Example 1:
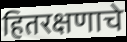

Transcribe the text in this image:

हितरक्षणाचे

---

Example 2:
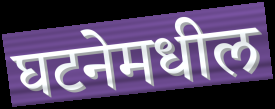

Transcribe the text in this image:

घटनेमधील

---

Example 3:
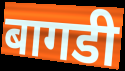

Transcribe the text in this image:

बागडी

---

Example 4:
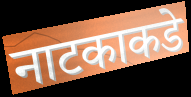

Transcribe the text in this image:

नाटकाकडे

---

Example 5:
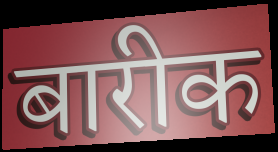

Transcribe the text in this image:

बारीक